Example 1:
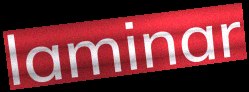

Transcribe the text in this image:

laminar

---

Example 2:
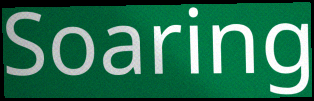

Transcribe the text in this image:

Soaring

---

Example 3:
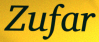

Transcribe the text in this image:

Zufar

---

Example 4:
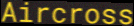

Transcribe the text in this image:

Aircross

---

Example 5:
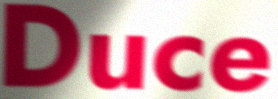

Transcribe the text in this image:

Duce